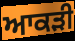
ਆਕੜੀ